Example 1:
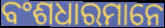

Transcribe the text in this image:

ବଂଶଧାରମାନେ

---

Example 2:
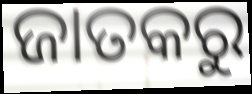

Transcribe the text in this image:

ଜାତକରୁ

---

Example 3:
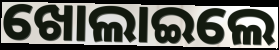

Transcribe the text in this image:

ଖୋଲାଇଲେ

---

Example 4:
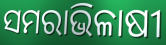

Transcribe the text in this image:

ସମରାଭିଳାଷୀ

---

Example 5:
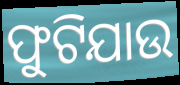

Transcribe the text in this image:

ଫୁଟିଯାଉ